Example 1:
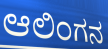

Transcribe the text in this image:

ಆಲಿಂಗನ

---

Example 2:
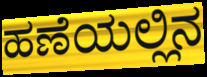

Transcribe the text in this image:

ಹಣೆಯಲ್ಲಿನ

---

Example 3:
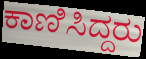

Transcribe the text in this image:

ಕಾಣಿಸಿದ್ದರು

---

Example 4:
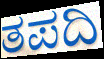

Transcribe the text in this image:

ತಪದಿ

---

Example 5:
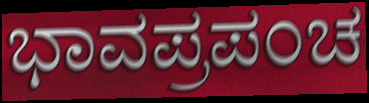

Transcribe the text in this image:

ಭಾವಪ್ರಪಂಚ